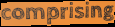
comprising